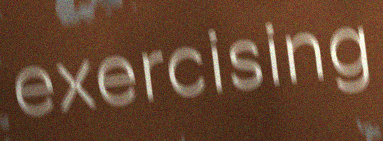
exercising